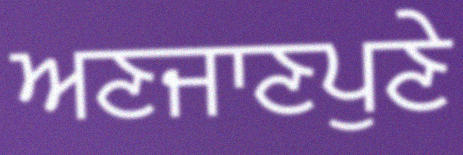
ਅਣਜਾਣਪੁਣੇ